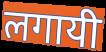
लगायी